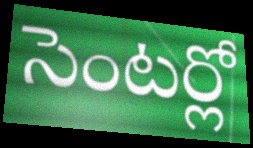
సెంటర్లో